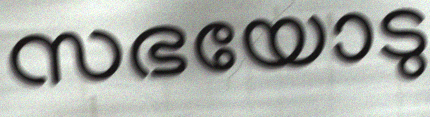
സഭയോടു